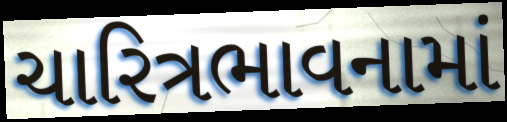
ચારિત્રભાવનામાં